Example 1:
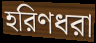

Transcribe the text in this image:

হরিণধরা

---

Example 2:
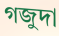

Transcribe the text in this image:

গজুদা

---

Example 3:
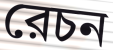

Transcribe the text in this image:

রেচন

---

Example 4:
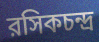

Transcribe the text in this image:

রসিকচন্দ্র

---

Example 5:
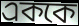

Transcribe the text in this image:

এককে